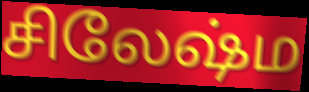
சிலேஷ்ம